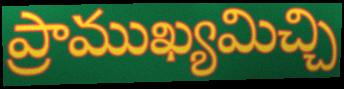
ప్రాముఖ్యమిచ్చి